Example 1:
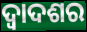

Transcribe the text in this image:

ଦ୍ୱାଦଶର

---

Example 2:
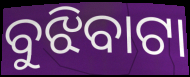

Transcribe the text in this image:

ବୁଝିବାଟା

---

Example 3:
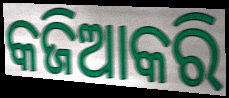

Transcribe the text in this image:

କଜିଆକରି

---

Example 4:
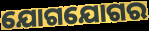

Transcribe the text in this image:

ଯୋଗଯୋଗର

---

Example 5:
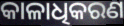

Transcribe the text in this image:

କାଳାଧିକରଣ